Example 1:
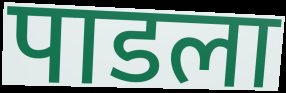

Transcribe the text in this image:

पाडला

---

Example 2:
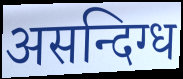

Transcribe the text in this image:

असन्दिग्ध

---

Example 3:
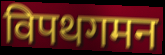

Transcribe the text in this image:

विपथगमन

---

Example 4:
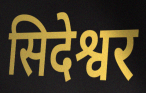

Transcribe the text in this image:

सिदेश्वर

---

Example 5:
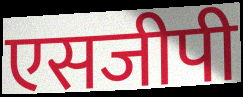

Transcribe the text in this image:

एसजीपी